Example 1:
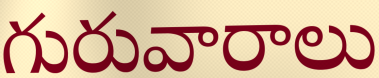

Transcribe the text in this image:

గురువారాలు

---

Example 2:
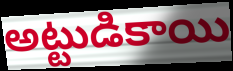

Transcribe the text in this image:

అట్టుడికాయి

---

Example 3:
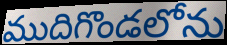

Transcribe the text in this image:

ముదిగొండలోను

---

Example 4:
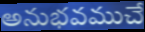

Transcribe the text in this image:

అనుభవముచే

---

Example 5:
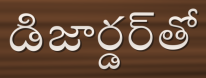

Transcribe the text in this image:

డిజార్డర్‌తో